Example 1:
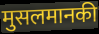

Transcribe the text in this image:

मुसलमानकी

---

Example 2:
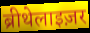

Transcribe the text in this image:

ब्रीथेलाइज़र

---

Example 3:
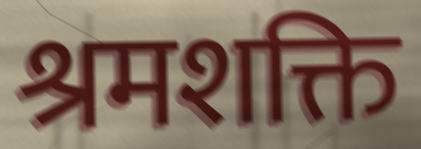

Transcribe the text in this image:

श्रमशक्ति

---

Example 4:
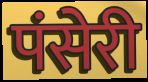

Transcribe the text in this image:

पंसेरी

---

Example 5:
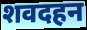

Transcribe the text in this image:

शवदहन